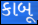
કાબૂ